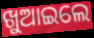
ଖୁଆଇଲେ